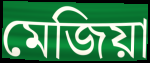
মেজিয়া